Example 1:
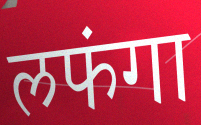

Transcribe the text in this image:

लफंगा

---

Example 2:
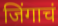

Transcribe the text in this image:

जिंगाचं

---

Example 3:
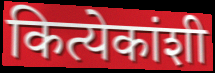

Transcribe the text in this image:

कित्येकांशी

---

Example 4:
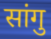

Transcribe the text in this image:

सांगु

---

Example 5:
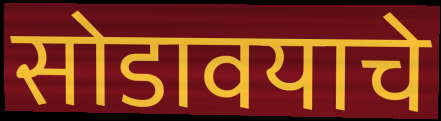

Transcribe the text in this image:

सोडावयाचे